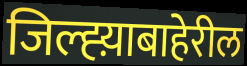
जिल्ह्य़ाबाहेरील